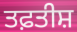
ਤਫ਼ਤੀਸ਼